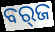
ବର୍‌ଜ